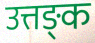
उत्तङ्क